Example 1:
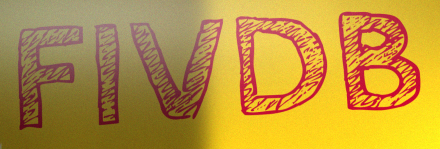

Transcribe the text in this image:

FIVDB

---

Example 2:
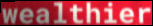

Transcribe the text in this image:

wealthier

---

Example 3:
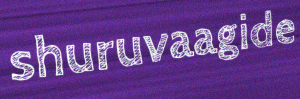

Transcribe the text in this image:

shuruvaagide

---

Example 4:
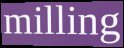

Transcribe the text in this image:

milling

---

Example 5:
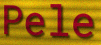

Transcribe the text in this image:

Pele